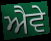
ਐਵੇ